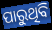
ପାରୁଥିବି